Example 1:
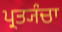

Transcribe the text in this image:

ਪ੍ਰਤ੍ਯੰਚਾ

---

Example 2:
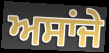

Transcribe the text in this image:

ਅਸਾਂਜੇ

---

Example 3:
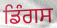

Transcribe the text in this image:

ਡਿੰਗਸ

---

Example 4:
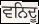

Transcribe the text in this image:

ਵਨਿਦੂ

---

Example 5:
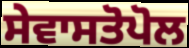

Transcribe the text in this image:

ਸੇਵਾਸਤੋਪੋਲ